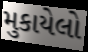
મુકાયેલો